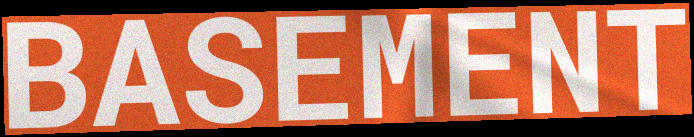
BASEMENT